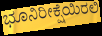
ಭೂನಿರೀಕ್ಷೆಯಿರಲಿ